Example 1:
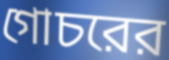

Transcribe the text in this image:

গোচরের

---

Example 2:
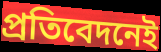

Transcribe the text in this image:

প্রতিবেদনেই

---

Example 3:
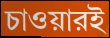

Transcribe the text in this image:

চাওয়ারই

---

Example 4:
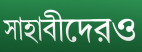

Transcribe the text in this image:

সাহাবীদেরও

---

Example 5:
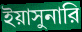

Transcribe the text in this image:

ইয়াসুনারি